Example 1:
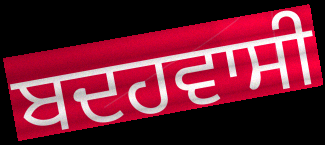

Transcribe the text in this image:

ਬਦਹਵਾਸੀ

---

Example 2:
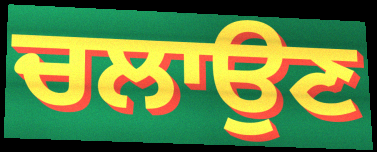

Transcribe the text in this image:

ਚਲਾਉਣ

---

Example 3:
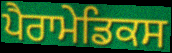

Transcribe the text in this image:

ਪੈਰਾਮੇਡਿਕਸ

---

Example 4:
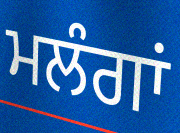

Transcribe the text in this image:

ਮਲੰਗਾਂ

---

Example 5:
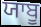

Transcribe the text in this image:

ਯਾਬੂ